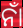
ନାଁ